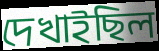
দেখাইছিল